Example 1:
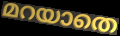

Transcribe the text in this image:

മറയാതെ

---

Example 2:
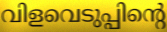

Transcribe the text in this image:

വിളവെടുപ്പിന്റെ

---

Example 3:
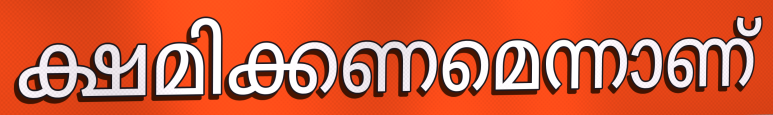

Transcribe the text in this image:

ക്ഷമിക്കണമെന്നാണ്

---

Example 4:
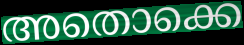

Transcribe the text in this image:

അതൊക്കെ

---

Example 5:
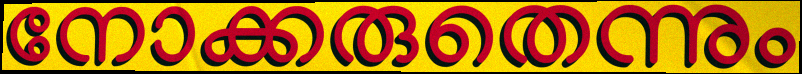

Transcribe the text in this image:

നോക്കരുതെന്നും